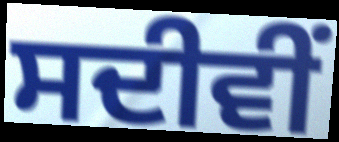
ਸਦੀਵੀਂ